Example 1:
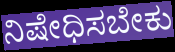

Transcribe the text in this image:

ನಿಷೇಧಿಸಬೇಕು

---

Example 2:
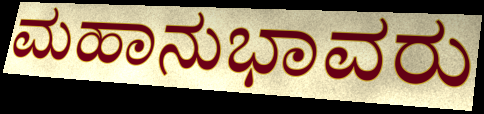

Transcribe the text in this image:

ಮಹಾನುಭಾವರು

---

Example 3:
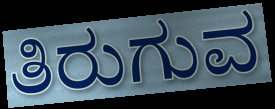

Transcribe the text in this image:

ತಿರುಗುವ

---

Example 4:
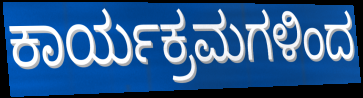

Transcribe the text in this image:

ಕಾರ್ಯಕ್ರಮಗಳಿಂದ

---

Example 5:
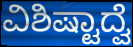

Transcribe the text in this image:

ವಿಶಿಷ್ಟಾದ್ವೆ